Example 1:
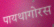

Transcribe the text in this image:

पायथागोरस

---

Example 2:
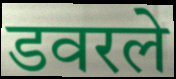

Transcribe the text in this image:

डवरले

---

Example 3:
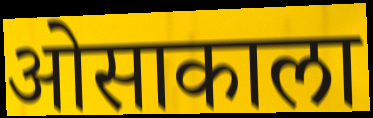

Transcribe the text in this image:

ओसाकाला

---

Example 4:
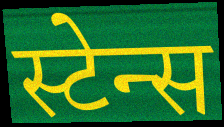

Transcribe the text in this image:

स्टेन्स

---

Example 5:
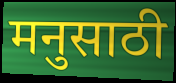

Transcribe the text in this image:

मनुसाठी